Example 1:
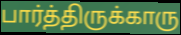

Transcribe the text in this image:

பார்த்திருக்காரு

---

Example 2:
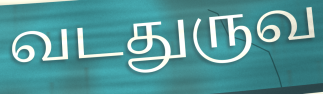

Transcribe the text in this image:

வடதுருவ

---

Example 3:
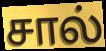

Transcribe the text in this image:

சால்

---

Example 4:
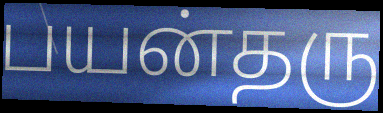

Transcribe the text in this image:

பயன்தரு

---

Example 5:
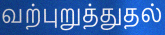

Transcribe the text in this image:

வற்புறுத்துதல்